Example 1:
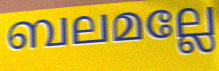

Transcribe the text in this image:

ബലമല്ലേ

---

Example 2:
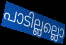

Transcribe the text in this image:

പാടില്ലല്ലൊ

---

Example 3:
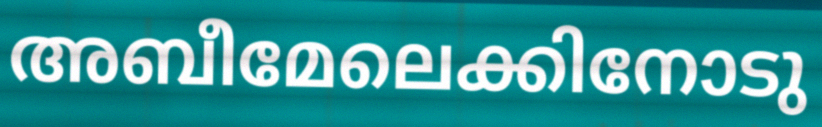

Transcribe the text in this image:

അബീമേലെക്കിനോടു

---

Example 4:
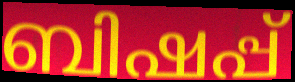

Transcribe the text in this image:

ബിഷപ്പ്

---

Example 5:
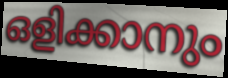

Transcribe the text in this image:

ഒളിക്കാനും